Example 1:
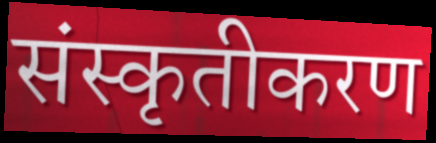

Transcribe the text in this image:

संस्कृतीकरण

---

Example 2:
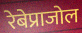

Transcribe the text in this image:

रेबेप्राजोल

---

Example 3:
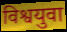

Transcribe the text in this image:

विश्वयुवा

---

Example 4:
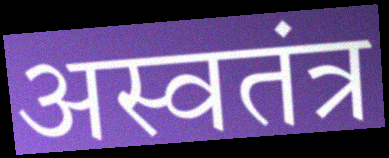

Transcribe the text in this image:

अस्वतंत्र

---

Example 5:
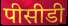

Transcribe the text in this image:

पीसीडी